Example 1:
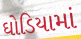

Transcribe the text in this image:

ઘોડિયામાં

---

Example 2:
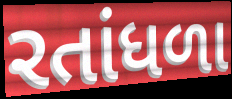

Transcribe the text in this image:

રતાંધળા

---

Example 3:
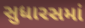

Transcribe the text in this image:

સુધારસમાં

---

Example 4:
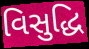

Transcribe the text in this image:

વિસુદ્ધિ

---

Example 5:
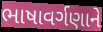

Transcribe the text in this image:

ભાષાવર્ગણાને